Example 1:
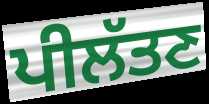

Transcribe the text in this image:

ਪੀਲੱਤਣ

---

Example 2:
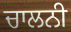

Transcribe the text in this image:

ਚਾਲਨੀ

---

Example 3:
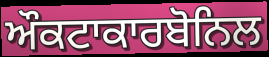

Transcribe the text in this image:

ਔਕਟਾਕਾਰਬੋਨਿਲ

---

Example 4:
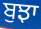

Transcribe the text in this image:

ਬੁਝਾ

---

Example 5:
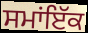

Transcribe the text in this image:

ਸਮਾਂਇੱਕ